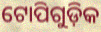
ଟୋପିଗୁଡ଼ିକ